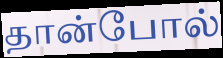
தான்போல்